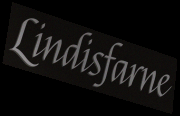
Lindisfarne